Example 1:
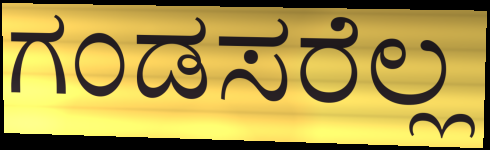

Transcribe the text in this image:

ಗಂಡಸರೆಲ್ಲ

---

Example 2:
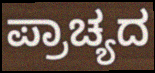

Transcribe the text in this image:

ಪ್ರಾಚ್ಯದ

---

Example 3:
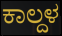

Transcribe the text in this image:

ಕಾಲ್ದಳ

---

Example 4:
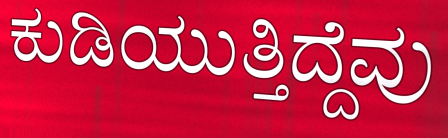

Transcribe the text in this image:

ಕುಡಿಯುತ್ತಿದ್ದೆವು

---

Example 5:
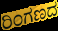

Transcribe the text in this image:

ರಿಂಗಣದ